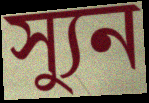
স্যুন